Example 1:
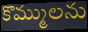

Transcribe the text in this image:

కొమ్ములను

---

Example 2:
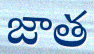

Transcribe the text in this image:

జాత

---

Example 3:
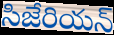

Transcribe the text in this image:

సిజేరియన్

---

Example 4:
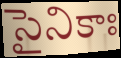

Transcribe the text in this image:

సైనికాః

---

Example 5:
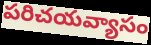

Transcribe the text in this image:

పరిచయవ్యాసం